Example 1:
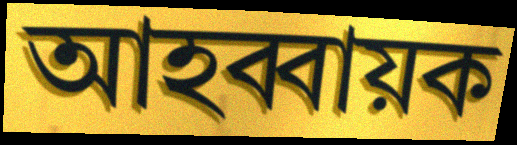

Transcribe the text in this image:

আহব্বায়ক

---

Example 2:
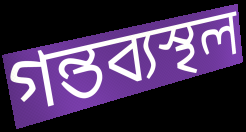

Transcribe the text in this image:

গন্তব্যস্থল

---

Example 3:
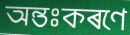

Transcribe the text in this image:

অন্তঃকৰণে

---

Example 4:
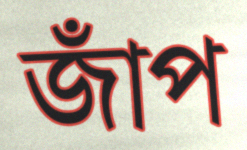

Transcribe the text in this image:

জাঁপ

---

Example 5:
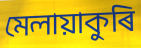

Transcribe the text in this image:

মেলায়াকুৰি